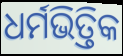
ଧର୍ମଭିତ୍ତିକ